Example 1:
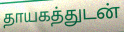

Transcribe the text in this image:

தாயகத்துடன்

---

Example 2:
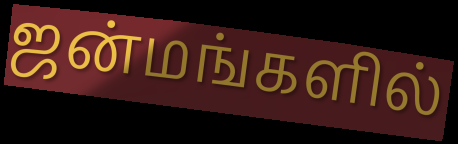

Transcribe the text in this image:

ஜன்மங்களில்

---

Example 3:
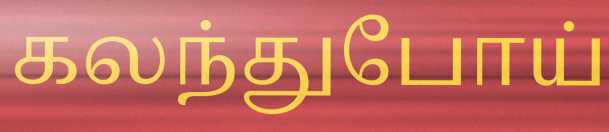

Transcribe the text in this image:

கலந்துபோய்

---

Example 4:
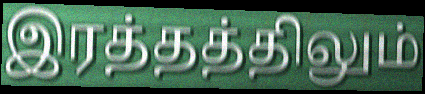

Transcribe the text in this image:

இரத்தத்திலும்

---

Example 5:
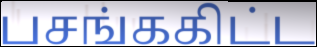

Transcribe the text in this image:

பசங்ககிட்ட